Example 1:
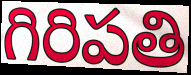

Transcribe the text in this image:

గిరిపతి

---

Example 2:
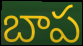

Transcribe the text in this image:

బాప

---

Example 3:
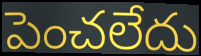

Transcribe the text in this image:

పెంచలేదు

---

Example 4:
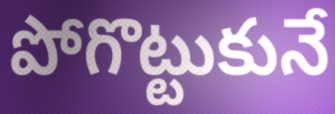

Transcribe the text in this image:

పోగొట్టుకునే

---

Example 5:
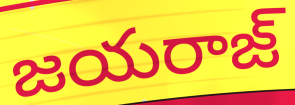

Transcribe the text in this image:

జయరాజ్